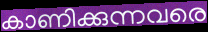
കാണിക്കുന്നവരെ